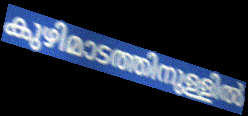
കുഴിമാടത്തിനുള്ളിൽ